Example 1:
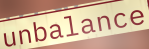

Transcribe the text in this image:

unbalance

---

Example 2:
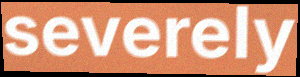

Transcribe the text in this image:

severely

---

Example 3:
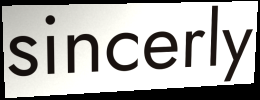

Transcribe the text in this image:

sincerly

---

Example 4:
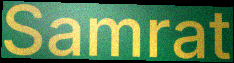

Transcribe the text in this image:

Samrat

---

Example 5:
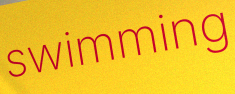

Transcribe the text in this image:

swimming